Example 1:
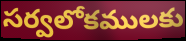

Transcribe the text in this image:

సర్వలోకములకు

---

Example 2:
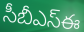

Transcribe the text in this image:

సీబీఎస్ఈ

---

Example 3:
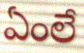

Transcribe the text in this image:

ఏంలే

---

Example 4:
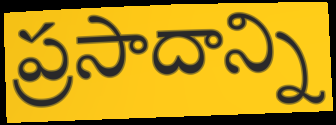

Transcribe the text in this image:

ప్రసాదాన్ని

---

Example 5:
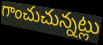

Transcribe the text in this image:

గాంచుచున్నట్లు